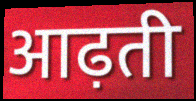
आढ़ती